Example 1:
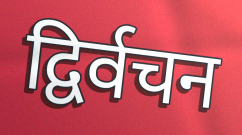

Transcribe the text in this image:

द्विर्वचन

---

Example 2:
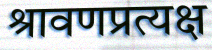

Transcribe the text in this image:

श्रावणप्रत्यक्ष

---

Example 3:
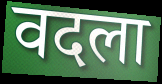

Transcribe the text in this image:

वदला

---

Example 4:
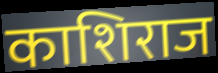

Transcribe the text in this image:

काशिराज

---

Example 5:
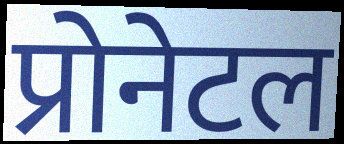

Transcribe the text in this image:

प्रोनेटल